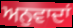
ਅਨੁਵਾਦਾਂ